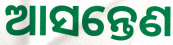
ଆସନ୍ତେଣ